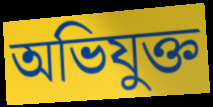
অভিযুক্ত